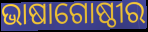
ଭାଷାଗୋଷ୍ଠୀର